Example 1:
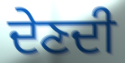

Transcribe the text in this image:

ਦੇਣਦੀ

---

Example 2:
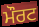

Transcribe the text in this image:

ਮੌਰਟ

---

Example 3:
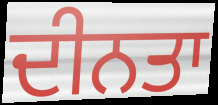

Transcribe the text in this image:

ਦੀਨਤਾ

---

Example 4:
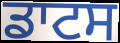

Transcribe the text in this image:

ਡਾਟਸ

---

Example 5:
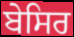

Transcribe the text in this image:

ਬੇਸਿਰ